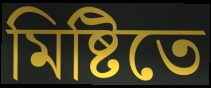
মিষ্টিতে